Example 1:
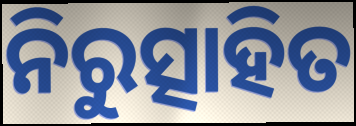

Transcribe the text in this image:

ନିରୁତ୍ସାହିତ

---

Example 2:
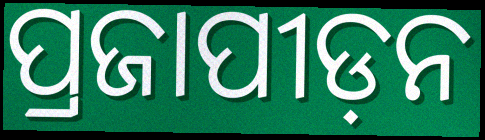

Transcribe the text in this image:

ପ୍ରଜାପୀଡ଼ନ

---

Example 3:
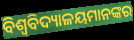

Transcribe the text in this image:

ବିଶ୍ଵବିଦ୍ୟାଳୟମାନଙ୍କର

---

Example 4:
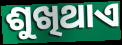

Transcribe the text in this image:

ଶୁଖିଥାଏ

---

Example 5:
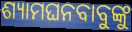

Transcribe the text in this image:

ଶ୍ୟାମଘନବାବୁଙ୍କୁ